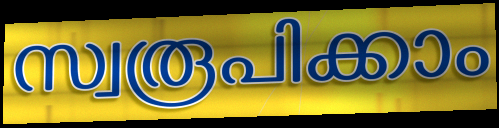
സ്വരൂപിക്കാം